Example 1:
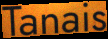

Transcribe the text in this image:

Tanais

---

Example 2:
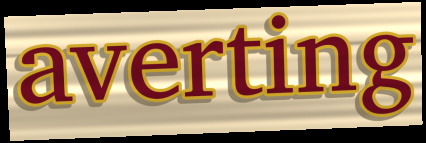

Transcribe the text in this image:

averting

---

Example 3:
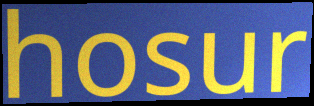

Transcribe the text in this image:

hosur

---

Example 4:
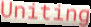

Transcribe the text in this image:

Uniting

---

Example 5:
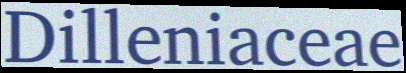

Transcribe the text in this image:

Dilleniaceae